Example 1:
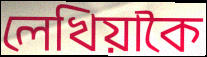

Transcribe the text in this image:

লেখিয়াকৈ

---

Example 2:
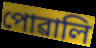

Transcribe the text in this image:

পোৱালি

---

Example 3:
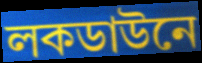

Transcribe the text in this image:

লকডাউনে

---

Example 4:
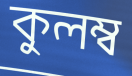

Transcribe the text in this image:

কুলম্ব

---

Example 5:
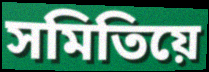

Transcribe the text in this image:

সমিতিয়ে